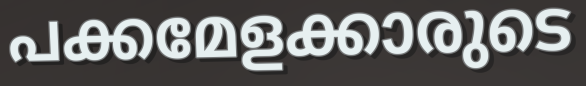
പക്കമേളക്കാരുടെ